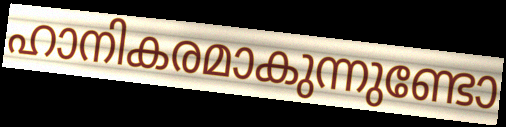
ഹാനികരമാകുന്നുണ്ടോ